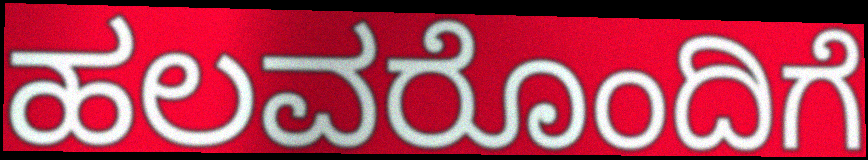
ಹಲವರೊಂದಿಗೆ